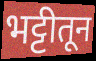
भट्टीतून